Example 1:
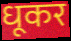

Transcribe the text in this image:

धूकर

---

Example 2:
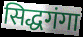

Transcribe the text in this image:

सिद्धगंगा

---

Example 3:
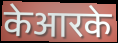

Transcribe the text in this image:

केआरके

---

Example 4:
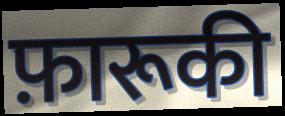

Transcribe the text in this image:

फ़ारूकी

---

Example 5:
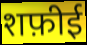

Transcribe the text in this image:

शफ़ीई